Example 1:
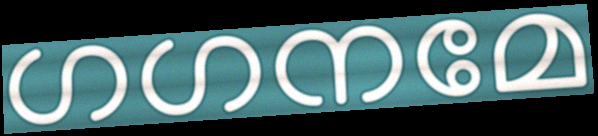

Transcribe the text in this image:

ഗഗനമേ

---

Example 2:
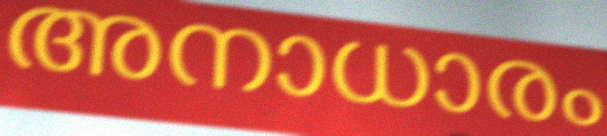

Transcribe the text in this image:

അനാധാരം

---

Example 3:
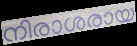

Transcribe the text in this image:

നിരാശരായ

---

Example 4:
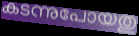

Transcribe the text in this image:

കടന്നുപോയതു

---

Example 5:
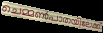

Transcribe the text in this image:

ചെമ്മൺപാതയിലേക്ക്